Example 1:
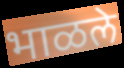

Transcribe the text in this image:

भाळले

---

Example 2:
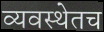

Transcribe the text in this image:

व्यवस्थेतच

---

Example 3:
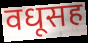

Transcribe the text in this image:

वधूसह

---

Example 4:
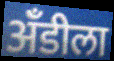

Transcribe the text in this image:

अँडीला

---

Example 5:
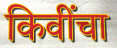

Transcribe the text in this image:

किवींचा